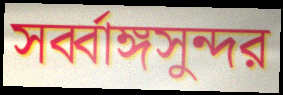
সর্ব্বাঙ্গসুন্দর